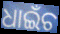
ଧାଇଁଚ